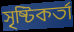
সৃষ্টিকৰ্তা